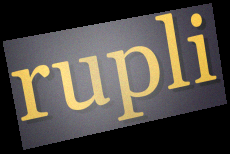
rupli